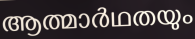
ആത്മാർഥതയും